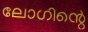
ലോഗിന്റെ